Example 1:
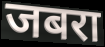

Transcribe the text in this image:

जबरा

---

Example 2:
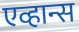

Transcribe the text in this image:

एव्हान्स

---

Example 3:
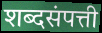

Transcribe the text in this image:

शब्दसंपत्ती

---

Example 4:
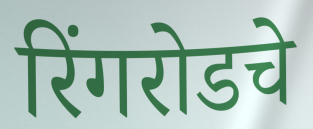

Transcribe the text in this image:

रिंगरोडचे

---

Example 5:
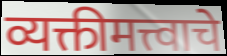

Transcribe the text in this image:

व्यक्तीमत्त्वाचे